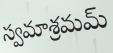
స్వమాశ్రమమ్